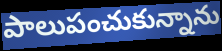
పాలుపంచుకున్నాను